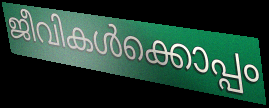
ജീവികൾക്കൊപ്പം